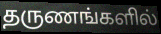
தருணங்களில்